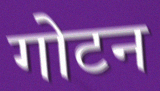
गोटन